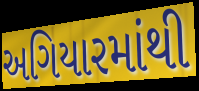
અગિયારમાંથી